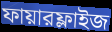
ফায়ারফ্লাইজ